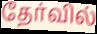
தேர்வில்